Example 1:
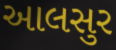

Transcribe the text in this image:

આલસુર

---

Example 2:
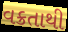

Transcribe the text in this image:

વક્રતાથી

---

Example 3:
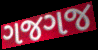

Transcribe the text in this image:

ગજગજ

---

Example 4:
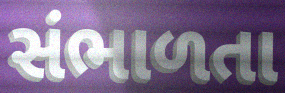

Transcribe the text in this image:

સંભાળતા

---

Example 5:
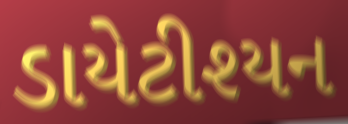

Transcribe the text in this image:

ડાયેટીશ્યન